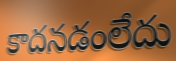
కాదనడంలేదు